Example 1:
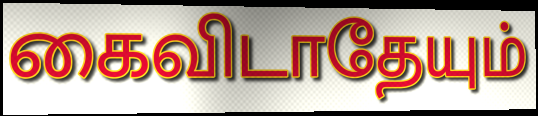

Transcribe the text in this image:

கைவிடாதேயும்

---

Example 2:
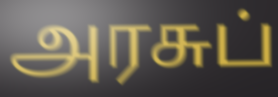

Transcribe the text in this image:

அரசுப்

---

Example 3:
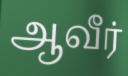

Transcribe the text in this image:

ஆவீர்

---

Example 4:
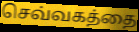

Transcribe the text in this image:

செவ்வகத்தை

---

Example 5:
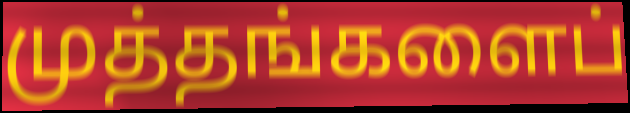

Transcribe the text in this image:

முத்தங்களைப்